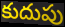
కుదుపు